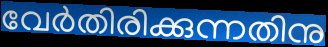
വേർതിരിക്കുന്നതിനു